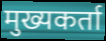
मुख्यकर्ता